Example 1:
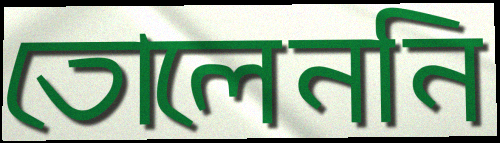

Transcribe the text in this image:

তোলেননি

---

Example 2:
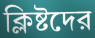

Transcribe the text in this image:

ক্লিষ্টদের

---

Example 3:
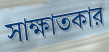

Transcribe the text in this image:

সাক্ষাতকার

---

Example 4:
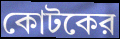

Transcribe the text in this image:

কোটকের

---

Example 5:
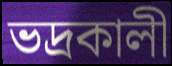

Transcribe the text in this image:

ভদ্রকালী